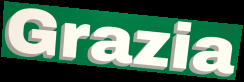
Grazia